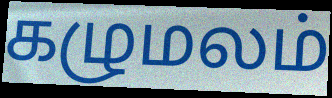
கழுமலம்